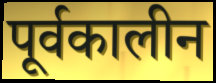
पूर्वकालीन